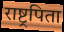
राष्ट्रपिता